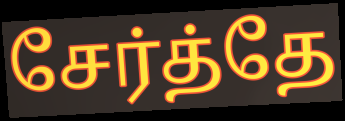
சேர்த்தே